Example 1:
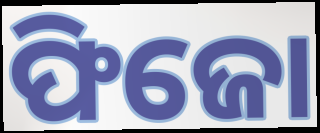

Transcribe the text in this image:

ଫିଜୋ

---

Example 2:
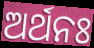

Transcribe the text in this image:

ଅର୍ଥନଃ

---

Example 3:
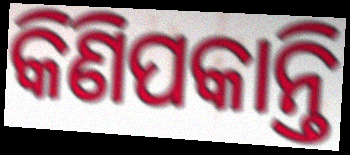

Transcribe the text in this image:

କିଣିପକାନ୍ତି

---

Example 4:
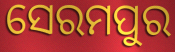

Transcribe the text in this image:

ସେରମପୁର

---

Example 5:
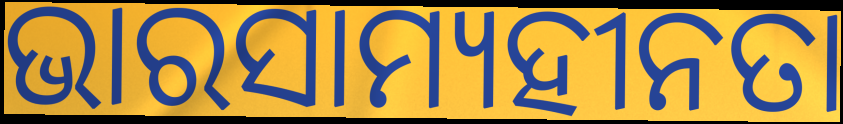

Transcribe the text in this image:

ଭାରସାମ୍ୟହୀନତା